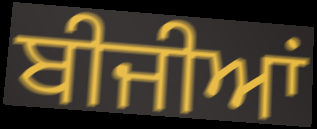
ਬੀਜੀਆਂ